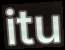
itu